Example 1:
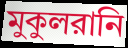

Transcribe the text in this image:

মুকুলরানি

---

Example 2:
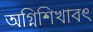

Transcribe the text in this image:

অগ্নিশিখাবৎ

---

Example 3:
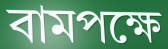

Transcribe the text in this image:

বামপক্ষে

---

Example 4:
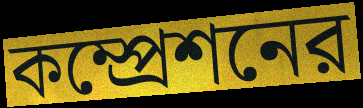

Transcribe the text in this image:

কম্প্রেশনের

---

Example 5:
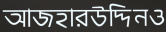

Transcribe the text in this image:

আজহারউদ্দিনও